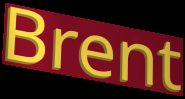
Brent